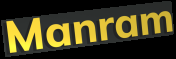
Manram